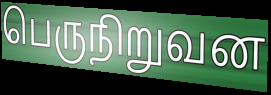
பெருநிறுவன